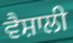
ਵੈਸ਼ਾਲੀ